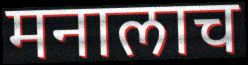
मनालाच